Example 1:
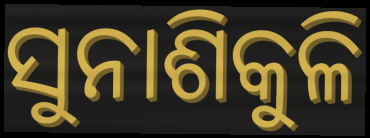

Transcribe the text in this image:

ସୁନାଶିକୁଳି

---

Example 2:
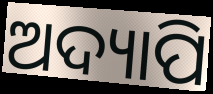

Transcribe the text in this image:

ଅଦ୍ୟାପି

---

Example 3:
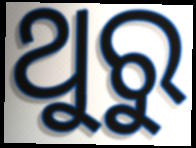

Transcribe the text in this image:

ଥୁରୁ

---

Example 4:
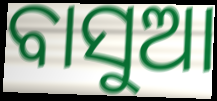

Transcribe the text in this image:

ବାସୁଆ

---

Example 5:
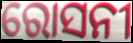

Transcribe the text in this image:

ରୋସନୀ